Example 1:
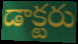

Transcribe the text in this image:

డాక్టరు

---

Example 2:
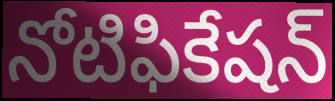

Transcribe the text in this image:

నోటిఫికేషన్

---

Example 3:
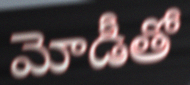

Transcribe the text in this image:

మోడీతో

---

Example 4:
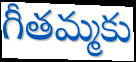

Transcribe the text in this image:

గీతమ్మకు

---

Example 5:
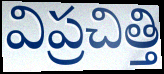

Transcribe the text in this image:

విప్రచిత్తి